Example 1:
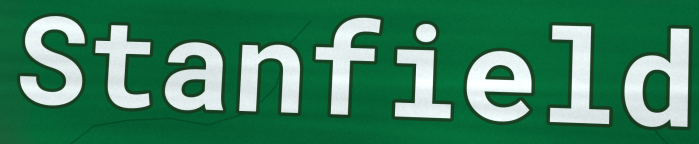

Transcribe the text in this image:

Stanfield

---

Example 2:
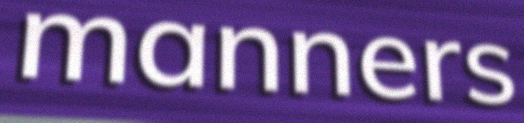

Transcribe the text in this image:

manners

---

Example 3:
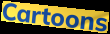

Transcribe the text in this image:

Cartoons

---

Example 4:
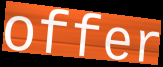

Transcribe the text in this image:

offer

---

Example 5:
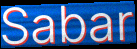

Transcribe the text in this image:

Sabar